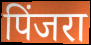
पिंजरा